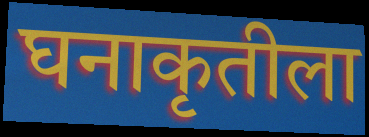
घनाकृतीला